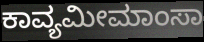
ಕಾವ್ಯಮೀಮಾಂಸಾ